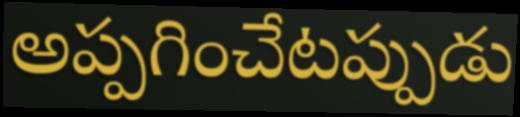
అప్పగించేటప్పుడు